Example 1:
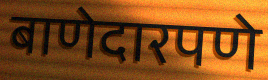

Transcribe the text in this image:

बाणेदारपणे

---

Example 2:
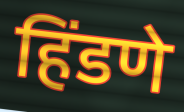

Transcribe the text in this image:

हिंडणे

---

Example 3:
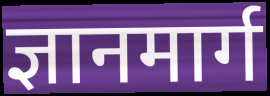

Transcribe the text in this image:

ज्ञानमार्ग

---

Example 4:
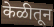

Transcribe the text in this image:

केळीतून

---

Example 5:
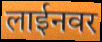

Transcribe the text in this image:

लाईनवर